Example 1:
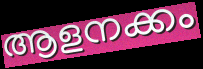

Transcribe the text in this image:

ആളനക്കം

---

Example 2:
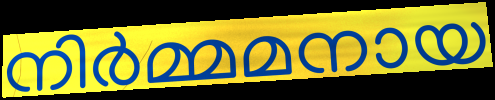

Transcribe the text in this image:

നിർമ്മമനായ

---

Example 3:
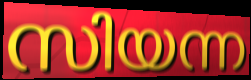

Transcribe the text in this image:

സിയന്ന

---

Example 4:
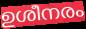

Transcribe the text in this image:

ഉശീനരം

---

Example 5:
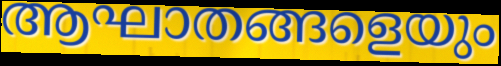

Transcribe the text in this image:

ആഘാതങ്ങളെയും